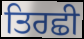
ਤਿਰਛੀ